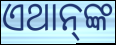
ଏଥାନ୍‍ଙ୍କ